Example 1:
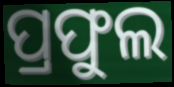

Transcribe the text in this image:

ପ୍ରଫୁଲ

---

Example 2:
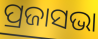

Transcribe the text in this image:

ପ୍ରଜାସଭା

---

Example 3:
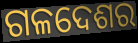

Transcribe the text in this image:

ଗଳଦେଶର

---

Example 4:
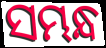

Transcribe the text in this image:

ସମ୍ଭନ୍ଧ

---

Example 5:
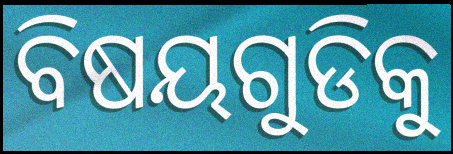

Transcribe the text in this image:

ବିଷୟଗୁଡିକୁ